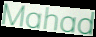
Mahad